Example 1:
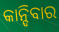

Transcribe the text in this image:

କାନ୍ଦିବାର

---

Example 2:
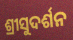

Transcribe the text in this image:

ଶ୍ରୀସୁଦର୍ଶନ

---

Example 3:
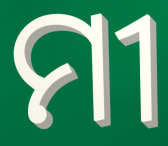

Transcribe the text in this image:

ମୀ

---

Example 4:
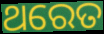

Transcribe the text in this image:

ଥରେତ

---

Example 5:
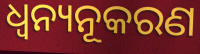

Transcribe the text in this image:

ଧ୍ୱନ୍ୟନୂକରଣ